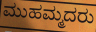
ಮುಹಮ್ಮದರು